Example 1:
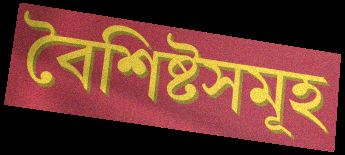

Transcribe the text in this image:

বৈশিষ্টসমূহ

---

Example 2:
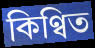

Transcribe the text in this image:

কিণ্বিত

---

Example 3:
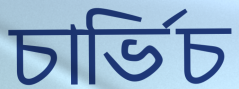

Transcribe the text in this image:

চাৰ্ভিচ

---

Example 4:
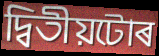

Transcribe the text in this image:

দ্বিতীয়টোৰ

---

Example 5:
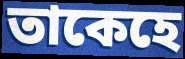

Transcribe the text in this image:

তাকেহে